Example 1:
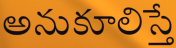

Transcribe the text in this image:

అనుకూలిస్తే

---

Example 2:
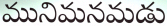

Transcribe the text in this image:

మునిమనమడు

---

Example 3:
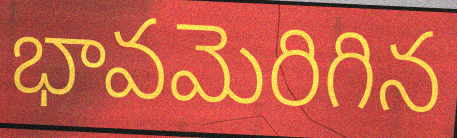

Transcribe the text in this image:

భావమెరిగిన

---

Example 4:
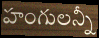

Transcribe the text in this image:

హంగులన్నీ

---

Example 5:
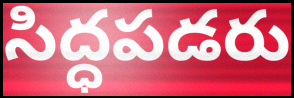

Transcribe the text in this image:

సిద్ధపడరు